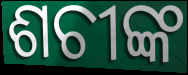
ଶଚୀଙ୍କ